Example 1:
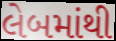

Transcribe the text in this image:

લેબમાંથી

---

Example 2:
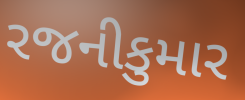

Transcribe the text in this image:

રજનીકુમાર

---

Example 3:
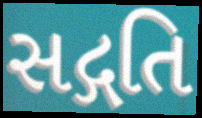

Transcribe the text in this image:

સદ્ગતિ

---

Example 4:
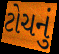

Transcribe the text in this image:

ટોચનું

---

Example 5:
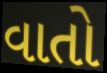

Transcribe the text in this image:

વાતો